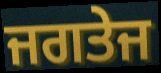
ਜਗਤੇਜ